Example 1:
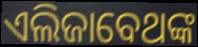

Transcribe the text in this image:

ଏଲିଜାବେଥଙ୍କ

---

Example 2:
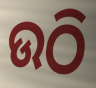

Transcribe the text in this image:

ଉଠି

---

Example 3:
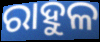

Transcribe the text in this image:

ରାହୁଳ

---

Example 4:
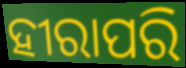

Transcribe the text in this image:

ହୀରାପରି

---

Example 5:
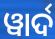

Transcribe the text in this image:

ୱାର୍ଦ